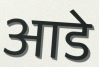
आडे